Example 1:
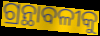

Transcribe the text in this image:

ଗ୍ରନ୍ଥାବଳୀକୁ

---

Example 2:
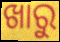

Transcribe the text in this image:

ଖାରୁ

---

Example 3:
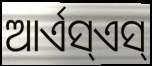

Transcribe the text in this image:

ଆର୍ଏସ୍ଏସ୍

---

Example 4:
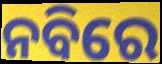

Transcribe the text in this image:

ନବିରେ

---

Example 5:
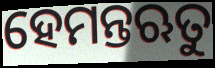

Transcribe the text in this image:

ହେମନ୍ତଋତୁ